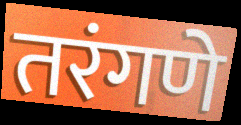
तरंगणे